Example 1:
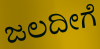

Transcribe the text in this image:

ಜಲದೀಗೆ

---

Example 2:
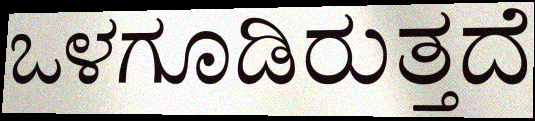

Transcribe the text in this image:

ಒಳಗೂಡಿರುತ್ತದೆ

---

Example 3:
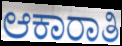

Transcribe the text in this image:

ಆಕಾರಾತಿ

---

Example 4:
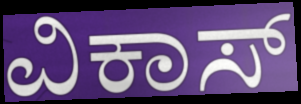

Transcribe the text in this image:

ವಿಕಾಸ್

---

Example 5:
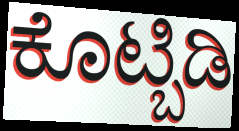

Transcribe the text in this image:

ಕೊಟ್ಬಿಡಿ